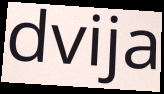
dvija